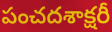
పంచదశాక్షరీ